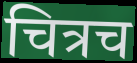
चित्रच